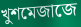
খুশমেজাজে